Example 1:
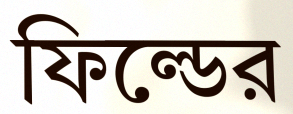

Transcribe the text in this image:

ফিল্ডের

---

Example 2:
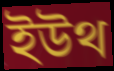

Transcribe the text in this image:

ইউথ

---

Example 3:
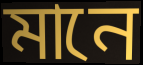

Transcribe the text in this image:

মানে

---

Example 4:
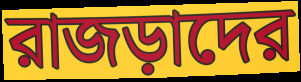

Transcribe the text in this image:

রাজড়াদের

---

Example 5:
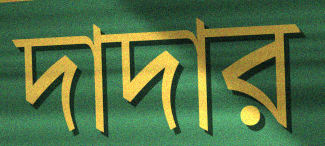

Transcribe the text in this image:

দাদার